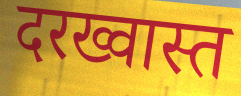
दरख्वास्त